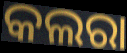
କଲରା